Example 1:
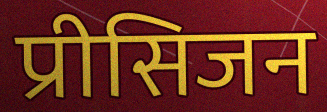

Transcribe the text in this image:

प्रीसिजन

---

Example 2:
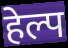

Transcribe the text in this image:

हेल्‍प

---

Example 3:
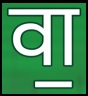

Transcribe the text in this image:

वा॒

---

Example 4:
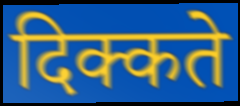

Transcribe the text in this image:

दिक्कते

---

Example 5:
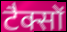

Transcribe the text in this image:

टैक्सों